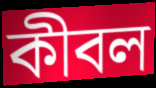
কীবল